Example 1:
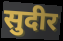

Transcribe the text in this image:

सुदीर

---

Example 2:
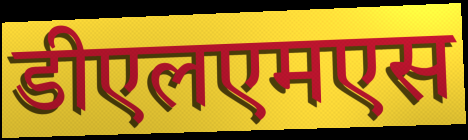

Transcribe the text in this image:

डीएलएमएस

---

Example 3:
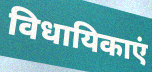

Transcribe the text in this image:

विधायिकाएं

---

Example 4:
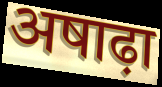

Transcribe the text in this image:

अषाढ़ा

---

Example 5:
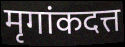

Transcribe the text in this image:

मृगांकदत्त